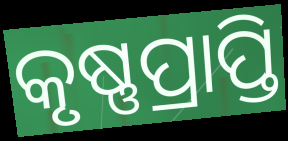
କୃଷ୍ଣପ୍ରାପ୍ତି